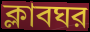
ক্লাবঘর